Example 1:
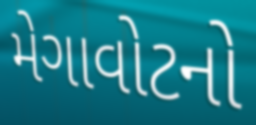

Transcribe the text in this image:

મેગાવોટનો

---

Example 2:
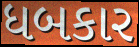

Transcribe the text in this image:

ધબકાર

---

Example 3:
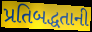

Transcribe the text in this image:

પ્રતિબદ્ધતાની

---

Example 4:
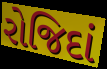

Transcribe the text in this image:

રોજિદાં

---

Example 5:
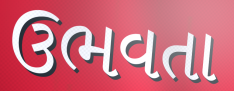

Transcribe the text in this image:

ઉભવતા